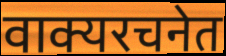
वाक्यरचनेत